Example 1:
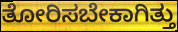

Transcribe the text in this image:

ತೋರಿಸಬೇಕಾಗಿತ್ತು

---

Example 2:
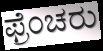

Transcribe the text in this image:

ಫ್ರೆಂಚರು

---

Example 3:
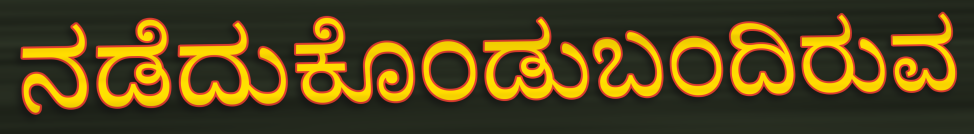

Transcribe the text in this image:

ನಡೆದುಕೊಂಡುಬಂದಿರುವ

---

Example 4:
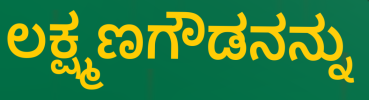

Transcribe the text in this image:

ಲಕ್ಷ್ಮಣಗೌಡನನ್ನು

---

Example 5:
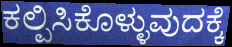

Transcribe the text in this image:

ಕಲ್ಪಿಸಿಕೊಳ್ಳುವುದಕ್ಕೆ